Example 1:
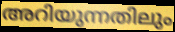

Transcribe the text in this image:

അറിയുന്നതിലും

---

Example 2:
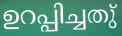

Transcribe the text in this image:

ഉറപ്പിച്ചതു്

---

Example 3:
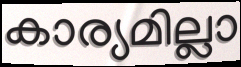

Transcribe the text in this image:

കാര്യമില്ലാ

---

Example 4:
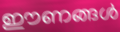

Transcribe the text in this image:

ഈണങ്ങൾ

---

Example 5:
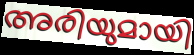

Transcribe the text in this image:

അരിയുമായി